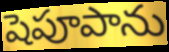
షెపూపాను